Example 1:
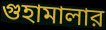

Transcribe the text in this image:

গুহামালার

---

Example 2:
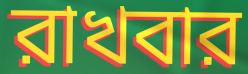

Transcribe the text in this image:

রাখবার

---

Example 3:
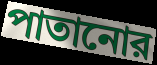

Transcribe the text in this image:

পাতানোর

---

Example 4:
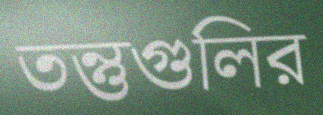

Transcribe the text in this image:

তন্তুগুলির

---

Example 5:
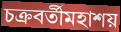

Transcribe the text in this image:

চক্রবর্তীমহাশয়